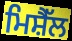
ਮਿਸ਼ੈੱਲ